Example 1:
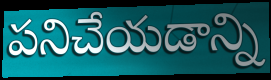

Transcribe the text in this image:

పనిచేయడాన్ని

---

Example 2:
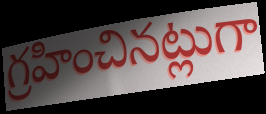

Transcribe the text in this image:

గ్రహించినట్లుగా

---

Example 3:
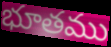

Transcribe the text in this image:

భూతము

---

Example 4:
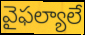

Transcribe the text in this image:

వైఫల్యాలే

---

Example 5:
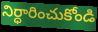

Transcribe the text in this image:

నిర్ధారించుకోండి